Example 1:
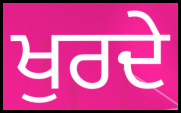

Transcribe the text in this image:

ਖੁਰਦੇ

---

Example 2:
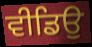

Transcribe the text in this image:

ਵੀਡਿਉ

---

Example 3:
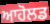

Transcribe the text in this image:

ਆਹੋਲਡ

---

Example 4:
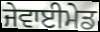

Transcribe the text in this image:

ਜੇਵਾਈਮੇਡ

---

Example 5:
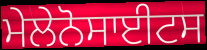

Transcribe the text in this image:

ਮੇਲੇਨੋਸਾਈਟਸ